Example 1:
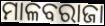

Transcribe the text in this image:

ମାଳବରାଜା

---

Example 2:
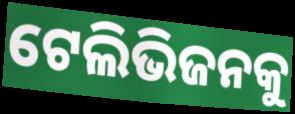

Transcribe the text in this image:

ଟେଲିଭିଜନକୁ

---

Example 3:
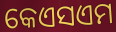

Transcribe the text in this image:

କେଏସଏମ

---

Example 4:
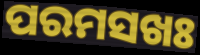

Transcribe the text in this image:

ପରମସଖଃ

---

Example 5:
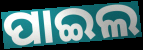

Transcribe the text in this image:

ପାଇଲ